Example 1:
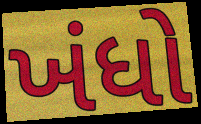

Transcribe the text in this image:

ખંધો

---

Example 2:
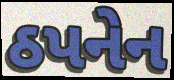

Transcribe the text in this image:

ઠપનેન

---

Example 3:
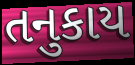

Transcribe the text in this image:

તનુકાય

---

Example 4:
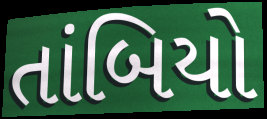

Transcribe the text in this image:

તાંબિયો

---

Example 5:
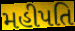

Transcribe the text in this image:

મહીપતિ